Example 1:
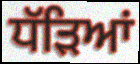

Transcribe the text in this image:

ਧੱੜਿਆਂ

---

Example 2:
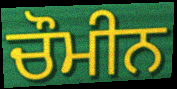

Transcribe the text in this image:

ਚੌਮੀਨ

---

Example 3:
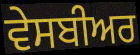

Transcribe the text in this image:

ਵੇਸਬੀਅਰ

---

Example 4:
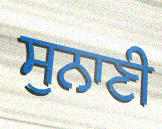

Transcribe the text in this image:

ਸੁਨਾਣੀ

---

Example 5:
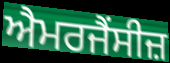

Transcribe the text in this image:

ਐਮਰਜੈਂਸੀਜ਼